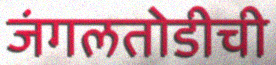
जंगलतोडीची